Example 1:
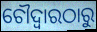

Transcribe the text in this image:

ଚୌଦ୍ୱାରଠାରୁ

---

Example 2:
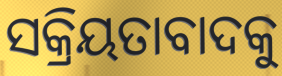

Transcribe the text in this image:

ସକ୍ରିୟତାବାଦକୁ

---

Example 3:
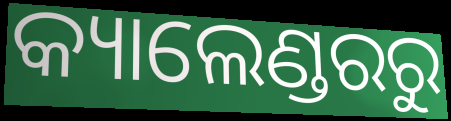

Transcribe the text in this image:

କ୍ୟାଲେଣ୍ଡରରୁ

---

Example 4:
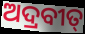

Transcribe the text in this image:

ଅଦ୍ରବୀତ୍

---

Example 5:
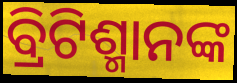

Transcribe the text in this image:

ବ୍ରିଟିଶ୍ମାନଙ୍କ